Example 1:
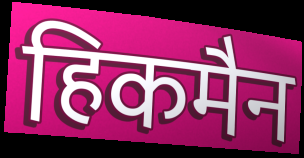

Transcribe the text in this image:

हिकमैन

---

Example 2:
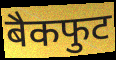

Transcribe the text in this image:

बैकफुट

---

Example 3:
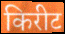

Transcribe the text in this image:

किरीट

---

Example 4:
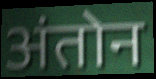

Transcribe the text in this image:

अंतोन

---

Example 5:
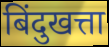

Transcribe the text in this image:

बिंदुखत्ता